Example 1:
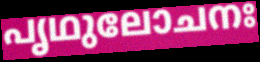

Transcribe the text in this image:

പൃഥുലോചനഃ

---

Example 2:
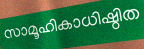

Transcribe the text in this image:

സാമൂഹികാധിഷ്ഠിത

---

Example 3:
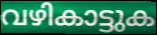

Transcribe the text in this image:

വഴികാട്ടുക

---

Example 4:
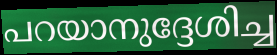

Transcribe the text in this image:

പറയാനുദ്ദേശിച്ച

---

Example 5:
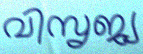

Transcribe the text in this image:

വിസൃജ്യ